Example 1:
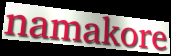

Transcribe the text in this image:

namakore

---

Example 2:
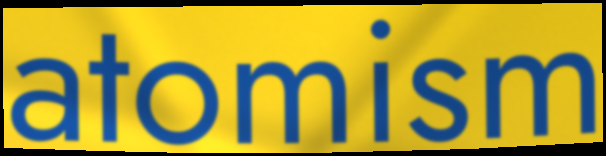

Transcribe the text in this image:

atomism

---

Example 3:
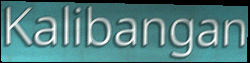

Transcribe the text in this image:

Kalibangan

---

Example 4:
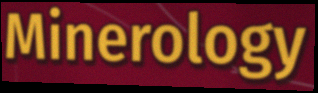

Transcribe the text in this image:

Minerology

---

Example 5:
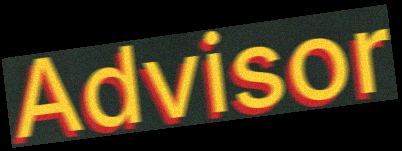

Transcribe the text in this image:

Advisor